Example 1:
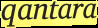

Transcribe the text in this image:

qantara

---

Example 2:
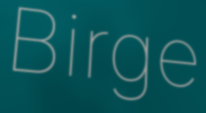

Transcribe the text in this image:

Birge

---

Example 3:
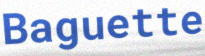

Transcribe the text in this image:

Baguette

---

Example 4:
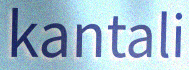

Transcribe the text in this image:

kantali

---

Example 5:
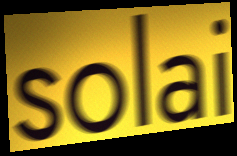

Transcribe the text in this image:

solai